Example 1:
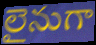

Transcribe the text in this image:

లైనుగా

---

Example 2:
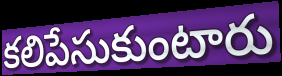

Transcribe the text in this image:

కలిపేసుకుంటారు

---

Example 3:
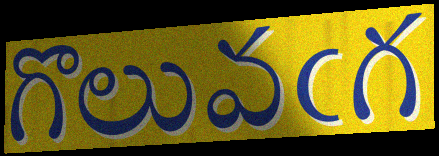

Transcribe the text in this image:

గొలువఁగ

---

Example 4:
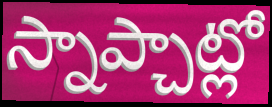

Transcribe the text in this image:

స్నాప్చాట్లో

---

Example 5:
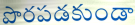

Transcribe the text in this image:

పొరపడకుండా